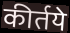
कीर्तये